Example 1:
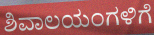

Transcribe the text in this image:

ಶಿವಾಲಯಂಗಳಿಗೆ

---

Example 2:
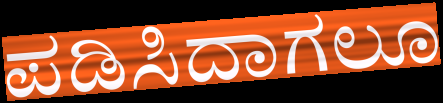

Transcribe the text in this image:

ಪಡಿಸಿದಾಗಲೂ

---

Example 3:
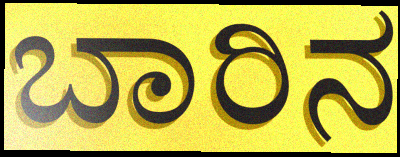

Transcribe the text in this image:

ಬಾರಿನ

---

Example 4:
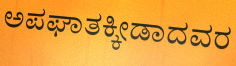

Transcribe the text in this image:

ಅಪಘಾತಕ್ಕೀಡಾದವರ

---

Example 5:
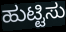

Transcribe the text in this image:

ಹುಟ್ಟಿಸು